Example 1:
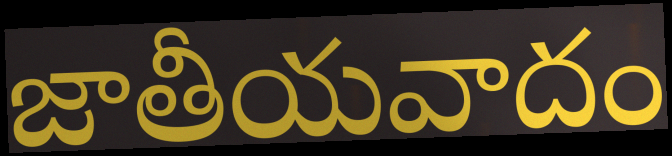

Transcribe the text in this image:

జాతీయవాదం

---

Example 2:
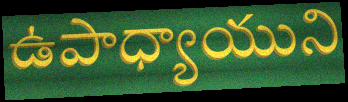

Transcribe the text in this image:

ఉపాధ్యాయుని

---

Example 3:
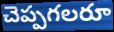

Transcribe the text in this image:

చెప్పగలరూ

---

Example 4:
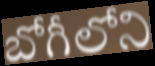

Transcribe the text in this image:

బోగీలోని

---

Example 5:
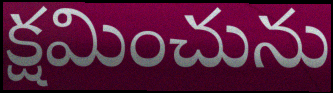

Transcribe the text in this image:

క్షమించును